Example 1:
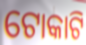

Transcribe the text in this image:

ଟୋକାଟି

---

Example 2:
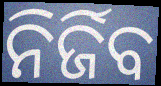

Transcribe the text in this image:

ନିର୍ଜିବ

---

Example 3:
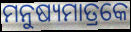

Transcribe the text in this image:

ମନୁଷ୍ୟମାତ୍ରକେ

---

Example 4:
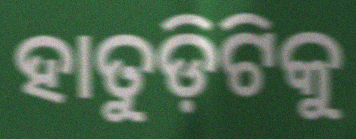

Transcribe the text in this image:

ହାତୁଡ଼ିଟିକୁ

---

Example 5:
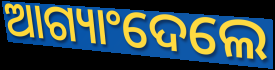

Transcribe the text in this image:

ଆଗ୍ୟାଂଦେଲେ